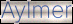
Aylmer